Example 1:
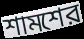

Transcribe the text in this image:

শামশের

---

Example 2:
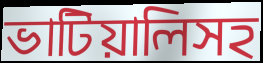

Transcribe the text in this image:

ভাটিয়ালিসহ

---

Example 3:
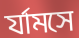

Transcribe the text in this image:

র্যামসে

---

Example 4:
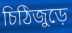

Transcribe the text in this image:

চিঠিজুড়ে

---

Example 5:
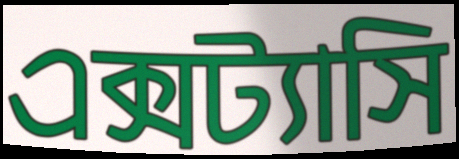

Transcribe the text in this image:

এক্সট্যাসি